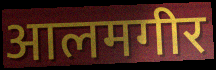
आलमगीर